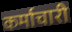
कर्माचारी